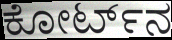
ಕೋರ್ಟ್‌ನ